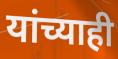
यांच्याही